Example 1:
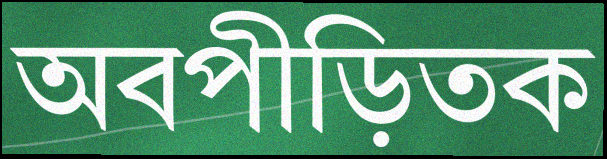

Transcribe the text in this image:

অবপীড়িতক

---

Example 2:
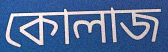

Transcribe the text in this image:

কোলাজ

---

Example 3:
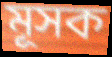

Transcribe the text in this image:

মূসক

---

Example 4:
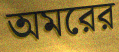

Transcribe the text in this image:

অমরের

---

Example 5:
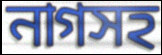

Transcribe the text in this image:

নাগসহ